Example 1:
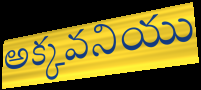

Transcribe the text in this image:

అక్కవనియు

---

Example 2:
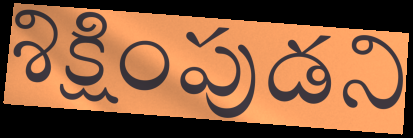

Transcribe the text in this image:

శిక్షింపుడని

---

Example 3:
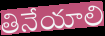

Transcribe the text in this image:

తినేయాలి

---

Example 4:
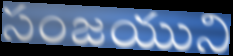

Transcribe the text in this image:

సంజయుని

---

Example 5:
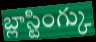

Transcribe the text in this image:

బ్లాస్టింగ్కు